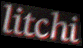
litchi